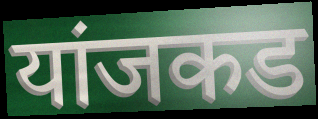
यांजकड